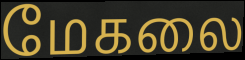
மேகலை